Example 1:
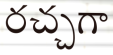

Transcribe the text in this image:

రచ్చగా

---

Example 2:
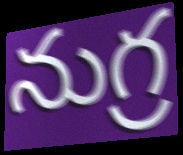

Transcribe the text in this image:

నుగ్ర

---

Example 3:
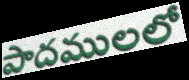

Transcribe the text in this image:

పాదములలో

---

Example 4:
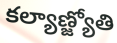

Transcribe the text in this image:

కల్యాణ్జ్యోతి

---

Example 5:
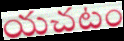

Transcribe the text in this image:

యచటం